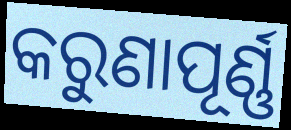
କରୁଣାପୂର୍ଣ୍ଣ